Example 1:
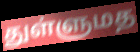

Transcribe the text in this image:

துள்ளுமத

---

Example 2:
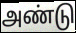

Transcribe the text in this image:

அண்டு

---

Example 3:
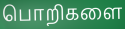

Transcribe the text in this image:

பொறிகளை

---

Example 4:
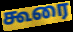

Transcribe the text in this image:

கூரை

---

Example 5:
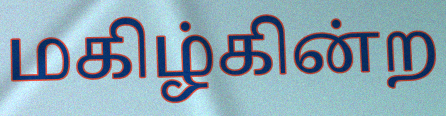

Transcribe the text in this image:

மகிழ்கின்ற